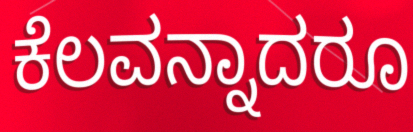
ಕೆಲವನ್ನಾದರೂ